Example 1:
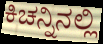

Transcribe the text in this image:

ಕಿಚನ್ನಿನಲ್ಲಿ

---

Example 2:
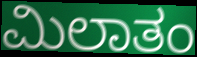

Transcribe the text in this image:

ಮಿಲಾತಂ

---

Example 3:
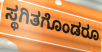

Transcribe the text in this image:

ಸ್ಥಗಿತಗೊಂಡರೂ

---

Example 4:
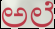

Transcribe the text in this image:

ಅಲೆ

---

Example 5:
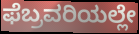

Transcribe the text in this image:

ಫೆಬ್ರವರಿಯಲ್ಲೇ